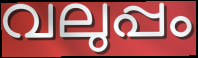
വലുപ്പം